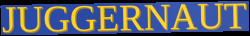
JUGGERNAUT